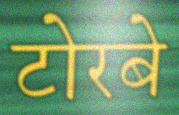
टोरबे